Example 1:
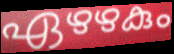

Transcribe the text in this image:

ഏഴഴകും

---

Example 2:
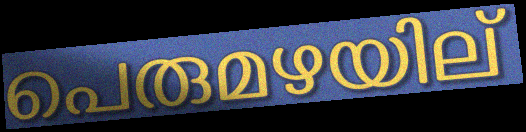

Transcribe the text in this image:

പെരുമഴയില്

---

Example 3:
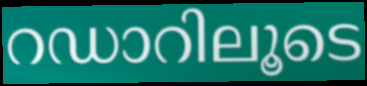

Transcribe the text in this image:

റഡാറിലൂടെ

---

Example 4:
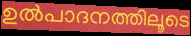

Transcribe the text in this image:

ഉൽപാദനത്തിലൂടെ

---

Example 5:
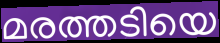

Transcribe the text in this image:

മരത്തടിയെ